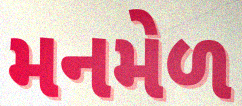
મનમેળ